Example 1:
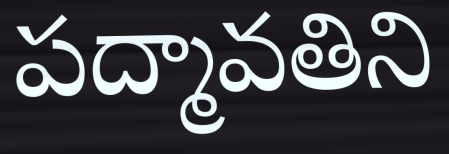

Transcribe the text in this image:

పద్మావతిని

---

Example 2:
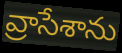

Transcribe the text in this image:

వ్రాసేశాను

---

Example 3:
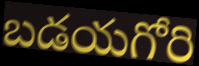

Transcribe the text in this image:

బడయగోరి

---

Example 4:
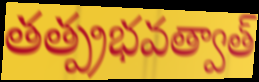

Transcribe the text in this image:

తత్ప్రభవత్వాత్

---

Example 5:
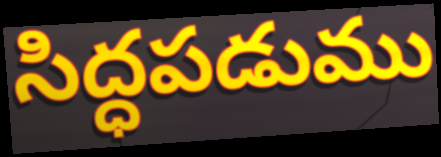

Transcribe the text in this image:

సిద్ధపడుము